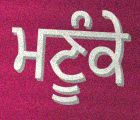
ਮਣੂੰਕੇ